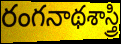
రంగనాథశాస్త్రి